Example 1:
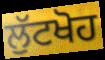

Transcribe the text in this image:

ਲੁੱਟਖੋਹ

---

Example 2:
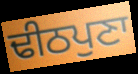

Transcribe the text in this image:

ਢੀਠਪੁਣਾ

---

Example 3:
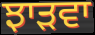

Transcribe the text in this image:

ਝਾੜਵਾ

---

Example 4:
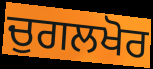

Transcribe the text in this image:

ਚੁਗਲਖੋਰ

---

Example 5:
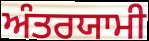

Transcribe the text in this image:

ਅੰਤਰਯਾਮੀ